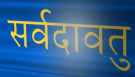
सर्वदावतु